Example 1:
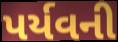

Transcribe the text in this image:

પર્યવની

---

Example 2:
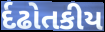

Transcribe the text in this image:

ર્દઢોતકીય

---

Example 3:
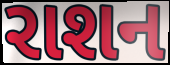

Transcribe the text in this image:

રાશન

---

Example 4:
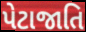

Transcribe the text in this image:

પેટાજાતિ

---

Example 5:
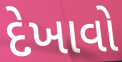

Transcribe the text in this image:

દેખાવો